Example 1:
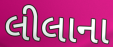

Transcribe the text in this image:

લીલાના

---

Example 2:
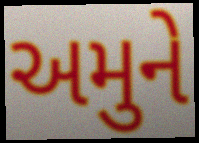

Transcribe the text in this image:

અમુને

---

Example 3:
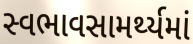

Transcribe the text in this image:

સ્વભાવસામર્થ્યમાં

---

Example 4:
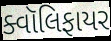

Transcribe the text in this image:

ક્વૉલિફાયર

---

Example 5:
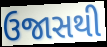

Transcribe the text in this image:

ઉજાસથી